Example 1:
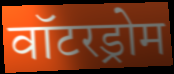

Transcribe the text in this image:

वॉटरड्रोम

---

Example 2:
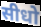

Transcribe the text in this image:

सीधो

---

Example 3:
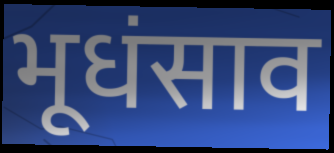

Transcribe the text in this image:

भूधंसाव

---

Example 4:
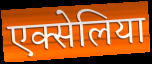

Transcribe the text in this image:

एक्सेलिया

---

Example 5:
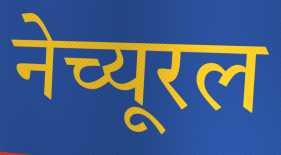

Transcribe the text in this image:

नेच्यूरल